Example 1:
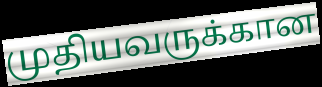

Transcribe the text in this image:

முதியவருக்கான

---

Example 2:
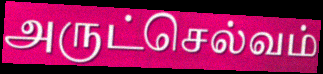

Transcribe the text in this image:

அருட்செல்வம்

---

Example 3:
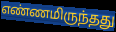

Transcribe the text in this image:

எண்ணமிருந்தது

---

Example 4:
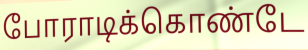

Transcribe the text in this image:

போராடிக்கொண்டே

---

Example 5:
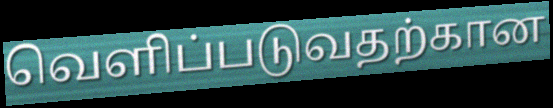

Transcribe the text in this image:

வெளிப்படுவதற்கான